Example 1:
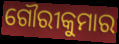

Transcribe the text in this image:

ଗୌରୀକୁମାର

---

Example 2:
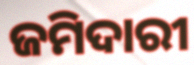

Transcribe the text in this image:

ଜମିଦାରୀ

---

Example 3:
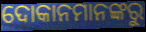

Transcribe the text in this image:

ଦୋକାନମାନଙ୍କରୁ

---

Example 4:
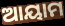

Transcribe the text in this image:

ଆୟାମ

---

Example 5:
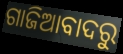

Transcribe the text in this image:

ଗାଜିଆବାଦରୁ